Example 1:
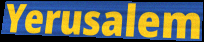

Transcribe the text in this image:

Yerusalem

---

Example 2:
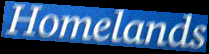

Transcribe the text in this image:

Homelands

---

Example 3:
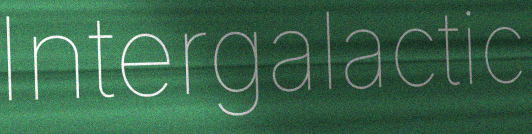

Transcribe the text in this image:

Intergalactic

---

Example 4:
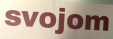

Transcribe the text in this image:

svojom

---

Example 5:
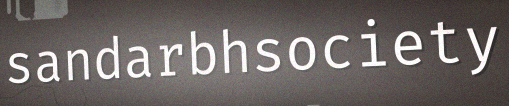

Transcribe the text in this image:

sandarbhsociety